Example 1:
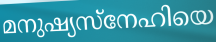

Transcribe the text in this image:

മനുഷ്യസ്നേഹിയെ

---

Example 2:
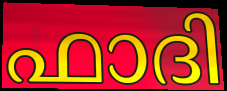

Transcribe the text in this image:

ഫാദി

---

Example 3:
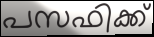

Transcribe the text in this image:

പസഫിക്ക്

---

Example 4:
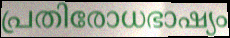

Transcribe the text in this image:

പ്രതിരോധഭാഷ്യം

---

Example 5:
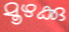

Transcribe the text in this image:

മൂഴക്കു